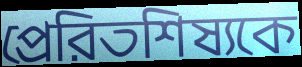
প্রেরিতশিষ্যকে